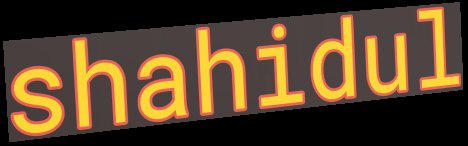
shahidul